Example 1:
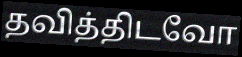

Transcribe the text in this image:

தவித்திடவோ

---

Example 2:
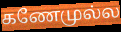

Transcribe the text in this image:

கணேமுல்ல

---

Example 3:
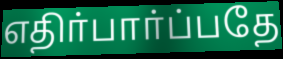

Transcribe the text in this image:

எதிர்பார்ப்பதே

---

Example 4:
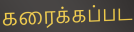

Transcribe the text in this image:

கரைக்கப்பட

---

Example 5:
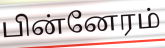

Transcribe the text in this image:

பின்னேரம்